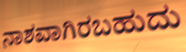
ನಾಶವಾಗಿರಬಹುದು